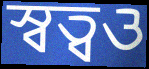
স্বত্বও